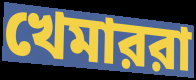
খেমাররা